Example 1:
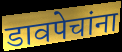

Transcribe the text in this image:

डावपेचांना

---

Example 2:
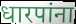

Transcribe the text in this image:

धारपांना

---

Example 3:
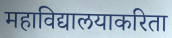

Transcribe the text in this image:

महाविद्यालयाकरिता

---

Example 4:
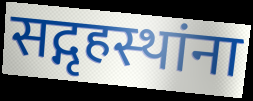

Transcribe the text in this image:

सद्गृहस्थांना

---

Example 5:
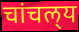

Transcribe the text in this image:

चांचल्य